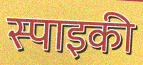
स्पाइकी